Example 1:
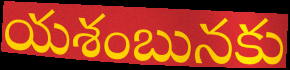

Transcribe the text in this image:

యశంబునకు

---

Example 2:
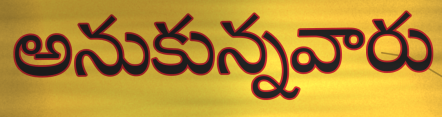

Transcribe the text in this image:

అనుకున్నవారు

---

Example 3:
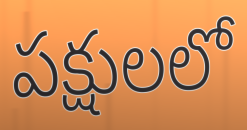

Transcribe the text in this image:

పక్షులలో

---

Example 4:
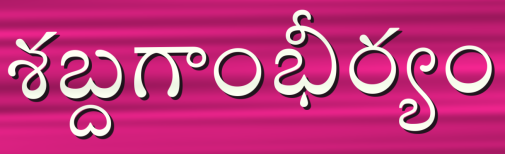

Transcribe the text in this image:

శబ్దగాంభీర్యం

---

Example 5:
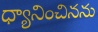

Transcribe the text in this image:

ధ్యానించినను